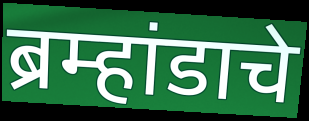
ब्रम्हांडाचे